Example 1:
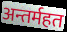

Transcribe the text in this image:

अन्तर्महत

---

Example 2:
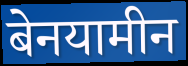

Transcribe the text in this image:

बेनयामीन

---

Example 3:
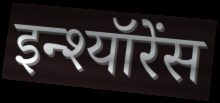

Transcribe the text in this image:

इन्श्यॉरेंस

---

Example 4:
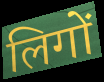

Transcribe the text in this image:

लिगों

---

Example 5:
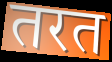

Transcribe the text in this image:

तरत